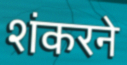
शंकरने